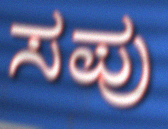
ಸಪು